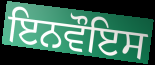
ਇਨਵੌਇਸ